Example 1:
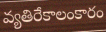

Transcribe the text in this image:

వ్యతిరేకాలంకారం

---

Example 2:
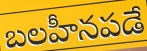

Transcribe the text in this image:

బలహీనపడే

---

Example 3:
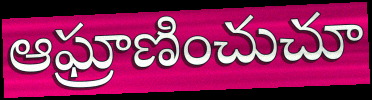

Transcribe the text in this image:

ఆఘ్రాణించుచూ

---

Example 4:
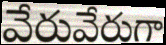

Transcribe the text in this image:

వేరువేరుగా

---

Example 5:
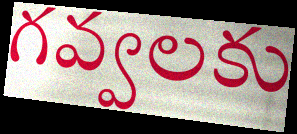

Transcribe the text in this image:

గవ్వలకు